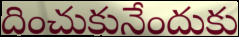
దించుకునేందుకు